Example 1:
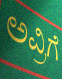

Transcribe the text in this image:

ಅವ್ರಿಗೆ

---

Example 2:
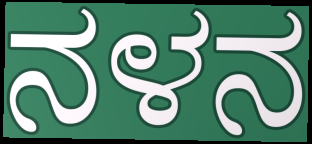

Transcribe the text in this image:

ನಳನ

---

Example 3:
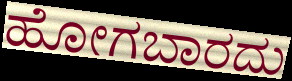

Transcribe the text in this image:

ಹೋಗಬಾರದು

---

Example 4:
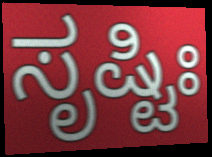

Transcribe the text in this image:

ಸೃಷ್ಟಿಃ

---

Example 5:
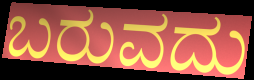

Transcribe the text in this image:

ಬರುವದು